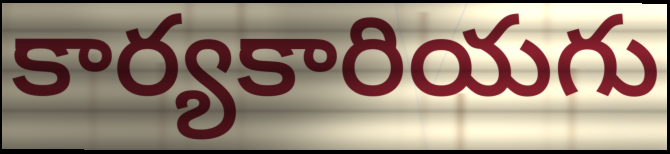
కార్యకారియగు